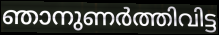
ഞാനുണർത്തിവിട്ട